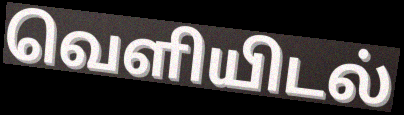
வெளியிடல்